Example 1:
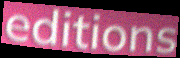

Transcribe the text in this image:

editions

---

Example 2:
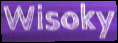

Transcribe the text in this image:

Wisoky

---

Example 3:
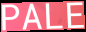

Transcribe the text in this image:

PALE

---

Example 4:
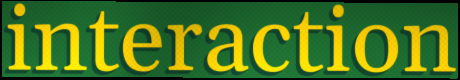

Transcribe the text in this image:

interaction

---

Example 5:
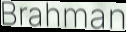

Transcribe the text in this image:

Brahman